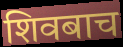
शिवबाच